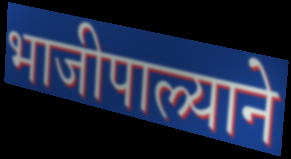
भाजीपाल्याने